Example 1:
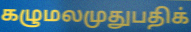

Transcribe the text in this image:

கழுமலமுதுபதிக்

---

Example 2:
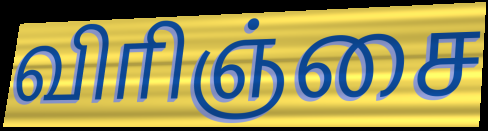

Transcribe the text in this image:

விரிஞ்சை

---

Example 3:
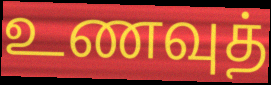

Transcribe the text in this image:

உணவுத்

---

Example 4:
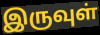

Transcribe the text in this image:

இருவுள்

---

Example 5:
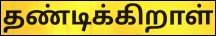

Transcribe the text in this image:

தண்டிக்கிறாள்